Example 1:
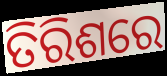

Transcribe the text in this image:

ତିରିଶରେ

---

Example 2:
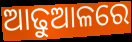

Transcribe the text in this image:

ଆଢୁଆଳରେ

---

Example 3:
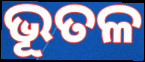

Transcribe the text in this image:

ଭୂତଳ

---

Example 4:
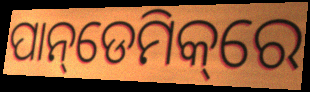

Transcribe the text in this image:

ପାନ୍‌ଡେମିକ୍‌ରେ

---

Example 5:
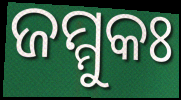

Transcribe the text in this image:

ଜମ୍ମୁକଃ